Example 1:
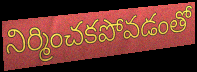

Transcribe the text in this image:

నిర్మించకపోవడంతో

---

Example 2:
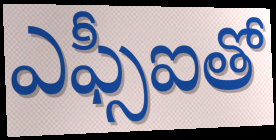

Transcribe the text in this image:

ఎఫ్సీఐతో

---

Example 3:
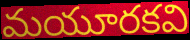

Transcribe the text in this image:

మయూరకవి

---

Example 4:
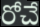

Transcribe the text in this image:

రోచే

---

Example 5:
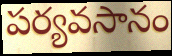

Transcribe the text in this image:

పర్యవసానం